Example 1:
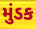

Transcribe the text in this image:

મુંડક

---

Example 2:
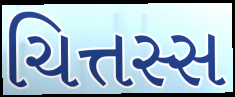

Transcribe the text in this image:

ચિત્તસ્સ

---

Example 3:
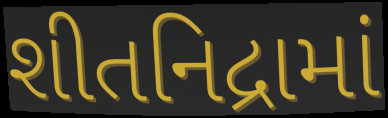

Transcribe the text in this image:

શીતનિદ્રામાં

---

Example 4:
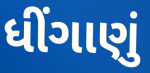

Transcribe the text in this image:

ધીંગાણું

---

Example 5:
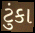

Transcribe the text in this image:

ટુંકા